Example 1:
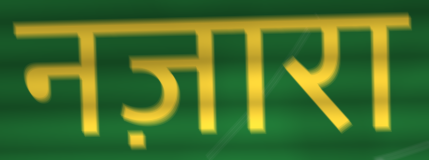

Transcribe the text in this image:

नज़ारा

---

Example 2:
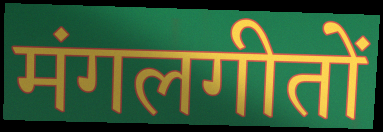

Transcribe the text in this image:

मंगलगीतों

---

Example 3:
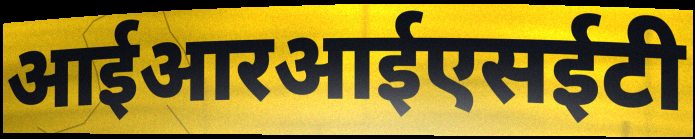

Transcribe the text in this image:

आईआरआईएसईटी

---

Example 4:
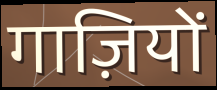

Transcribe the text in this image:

गाज़ियों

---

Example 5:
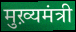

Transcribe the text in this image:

मुख़्यमंत्री